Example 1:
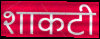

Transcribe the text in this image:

शाकटी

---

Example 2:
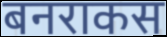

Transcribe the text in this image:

बनराकस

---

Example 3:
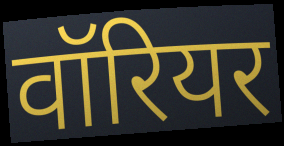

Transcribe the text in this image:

वॉरियर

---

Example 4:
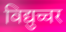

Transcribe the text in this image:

विद्युच्चर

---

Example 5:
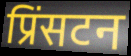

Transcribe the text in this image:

प्रिंसटन